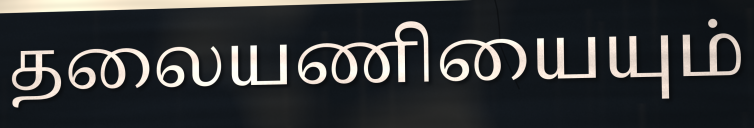
தலையணியையும்